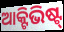
ଆକ୍ଟିଭିଷ୍ଟ୍